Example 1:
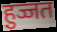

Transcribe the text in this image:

ह़ुज्जत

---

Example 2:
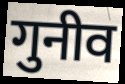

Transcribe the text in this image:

गुनीव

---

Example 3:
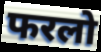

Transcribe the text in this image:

फरलो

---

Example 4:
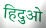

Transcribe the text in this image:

हिदुओ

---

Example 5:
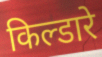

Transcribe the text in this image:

किल्डारे